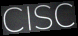
CISC